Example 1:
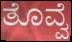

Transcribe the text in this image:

ತೊವ್ವೆ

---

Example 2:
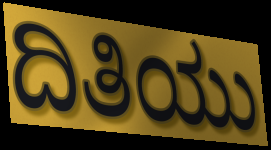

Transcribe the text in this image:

ದಿತಿಯು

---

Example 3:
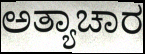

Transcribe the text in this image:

ಅತ್ಯಾಚಾರ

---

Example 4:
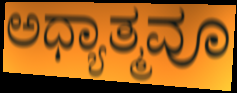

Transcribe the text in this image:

ಅಧ್ಯಾತ್ಮವೂ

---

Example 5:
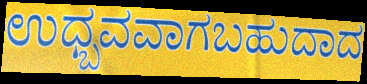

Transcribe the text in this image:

ಉಧ್ಬವವಾಗಬಹುದಾದ